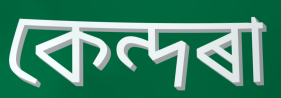
কেন্দৰা